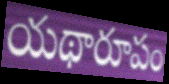
యథారూపం